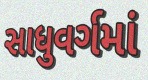
સાધુવર્ગમાં